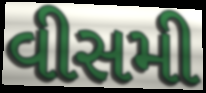
વીસમી